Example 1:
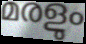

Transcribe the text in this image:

മരളും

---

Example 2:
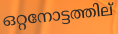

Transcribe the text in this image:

ഒറ്റനോട്ടത്തില്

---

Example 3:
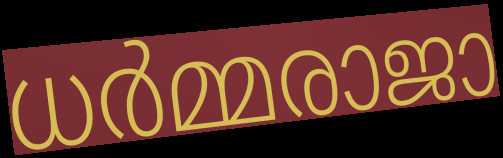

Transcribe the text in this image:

ധർമ്മരാജാ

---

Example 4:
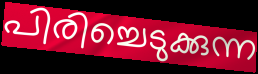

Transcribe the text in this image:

പിരിച്ചെടുക്കുന്ന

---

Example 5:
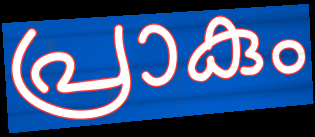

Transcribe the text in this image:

പ്രാകും